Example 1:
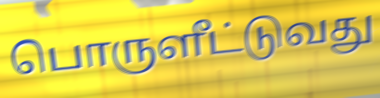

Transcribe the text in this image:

பொருளீட்டுவது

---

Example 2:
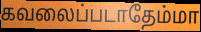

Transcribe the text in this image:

கவலைப்படாதேம்மா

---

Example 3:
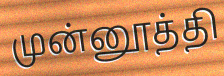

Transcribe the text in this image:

முன்னூத்தி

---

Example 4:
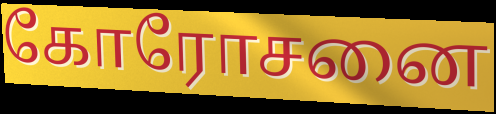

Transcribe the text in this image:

கோரோசனை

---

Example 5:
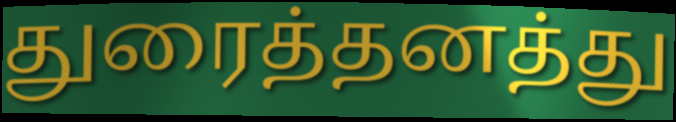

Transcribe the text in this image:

துரைத்தனத்து